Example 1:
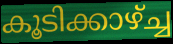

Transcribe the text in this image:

കൂടിക്കാഴ്ച്ച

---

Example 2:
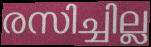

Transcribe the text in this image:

രസിച്ചില്ല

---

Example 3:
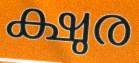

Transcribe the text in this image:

ക്ഷുര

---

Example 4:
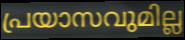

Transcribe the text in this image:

പ്രയാസവുമില്ല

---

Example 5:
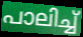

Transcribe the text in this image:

പാലിച്ച്